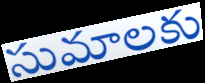
సుమాలకు